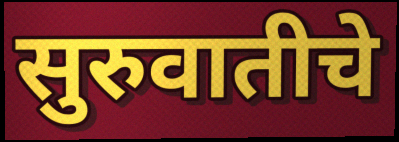
सुरुवातीचे